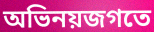
অভিনয়জগতে